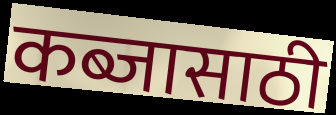
कब्जासाठी